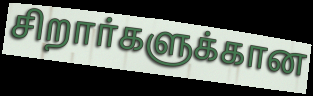
சிறார்களுக்கான